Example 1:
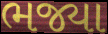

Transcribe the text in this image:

ભજ્યા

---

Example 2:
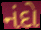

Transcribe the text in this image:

નંદો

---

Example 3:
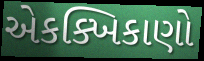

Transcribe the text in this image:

એકક્ખિકાણો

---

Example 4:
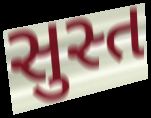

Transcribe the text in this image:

સુસ્ત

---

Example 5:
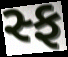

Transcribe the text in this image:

સ્ફ